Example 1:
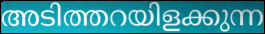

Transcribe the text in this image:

അടിത്തറയിളക്കുന്ന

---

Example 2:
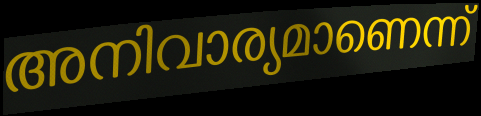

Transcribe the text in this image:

അനിവാര്യമാണെന്ന്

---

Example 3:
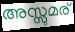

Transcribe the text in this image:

അസ്സുമര്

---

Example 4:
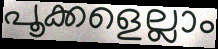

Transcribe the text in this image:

പൂക്കളെല്ലാം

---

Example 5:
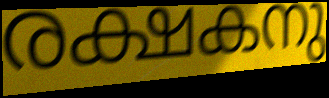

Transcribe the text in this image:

രക്ഷകനു